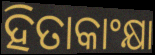
ହିତାକାଂକ୍ଷା